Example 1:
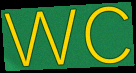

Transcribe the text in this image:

wc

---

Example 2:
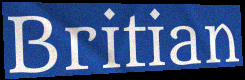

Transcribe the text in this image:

Britian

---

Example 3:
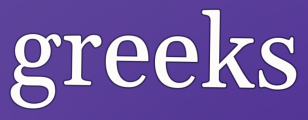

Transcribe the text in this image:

greeks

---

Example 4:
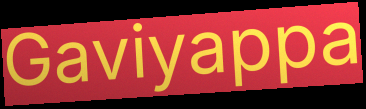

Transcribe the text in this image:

Gaviyappa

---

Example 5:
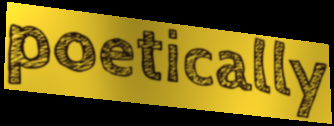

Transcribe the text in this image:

poetically